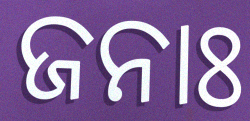
ଜନାଃ